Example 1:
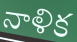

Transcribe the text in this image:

నాళిక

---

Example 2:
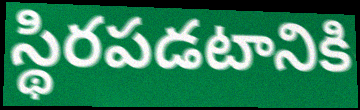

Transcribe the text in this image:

స్థిరపడటానికి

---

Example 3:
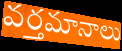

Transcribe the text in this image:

వర్తమానాలు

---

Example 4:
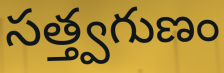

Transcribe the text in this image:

సత్త్వగుణం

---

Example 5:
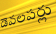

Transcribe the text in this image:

డెవలపర్లు